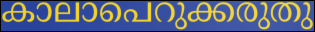
കാലാപെറുക്കരുതു